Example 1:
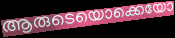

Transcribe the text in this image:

ആരുടെയൊക്കെയോ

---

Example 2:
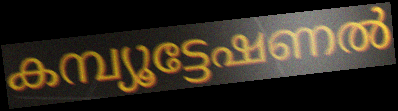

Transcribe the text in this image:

കമ്പ്യൂട്ടേഷണൽ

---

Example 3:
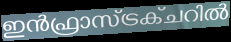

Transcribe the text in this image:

ഇൻഫ്രാസ്ട്രക്ചറിൽ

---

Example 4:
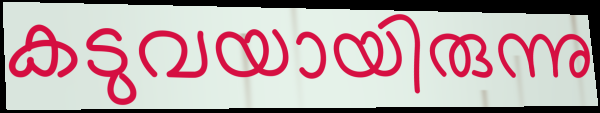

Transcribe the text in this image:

കടുവയായിരുന്നു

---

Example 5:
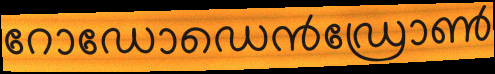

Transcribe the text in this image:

റോഡോഡെൻഡ്രോൺ